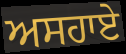
ਅਸਹਾਏ